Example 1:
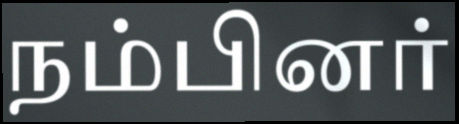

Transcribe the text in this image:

நம்பினர்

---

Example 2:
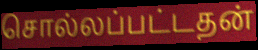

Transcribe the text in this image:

சொல்லப்பட்டதன்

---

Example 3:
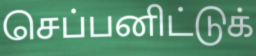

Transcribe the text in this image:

செப்பனிட்டுக்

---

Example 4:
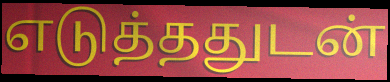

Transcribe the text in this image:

எடுத்ததுடன்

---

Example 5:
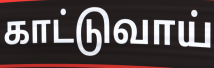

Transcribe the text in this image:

காட்டுவாய்